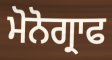
ਮੋਨੋਗ੍ਰਾਫ